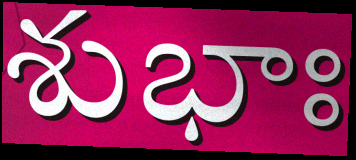
శుభాః